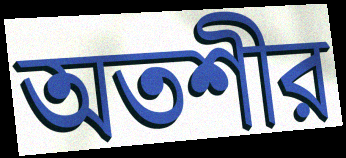
অতশীর